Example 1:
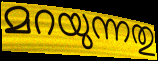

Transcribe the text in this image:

മറയുന്നതു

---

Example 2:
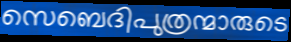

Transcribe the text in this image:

സെബെദിപുത്രന്മാരുടെ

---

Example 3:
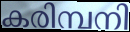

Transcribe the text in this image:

കരിമ്പനി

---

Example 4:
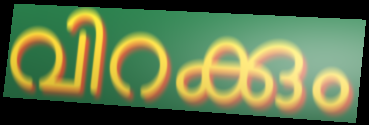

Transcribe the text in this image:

വിറക്കും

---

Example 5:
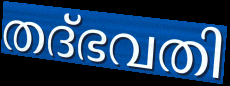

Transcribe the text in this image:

തദ്ഭവതി